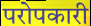
परोपकारी